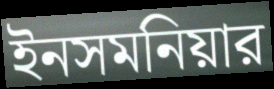
ইনসমনিয়ার